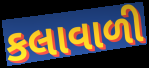
કલાવાળી